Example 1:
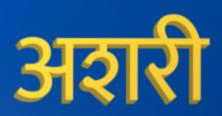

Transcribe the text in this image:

अशरी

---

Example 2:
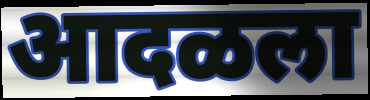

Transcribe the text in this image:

आदळला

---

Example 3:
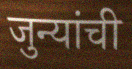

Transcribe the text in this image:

जुन्यांची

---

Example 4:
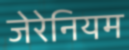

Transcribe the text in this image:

जेरेनियम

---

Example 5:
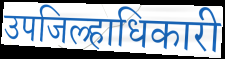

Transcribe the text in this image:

उपजिल्हाधिकारी